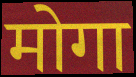
मोगा